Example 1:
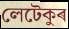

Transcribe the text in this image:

লেটেকুৰ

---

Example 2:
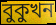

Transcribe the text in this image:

বুকুখন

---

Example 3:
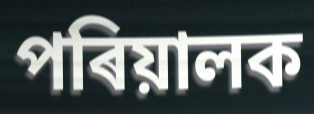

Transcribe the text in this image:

পৰিয়ালক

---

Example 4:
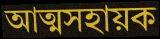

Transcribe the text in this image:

আত্মসহায়ক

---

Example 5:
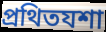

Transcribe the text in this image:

প্ৰথিতযশা